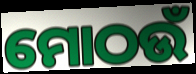
ମୋଠଉଁ